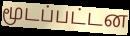
மூடப்பட்டன